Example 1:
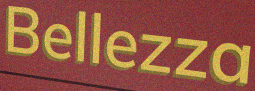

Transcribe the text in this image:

Bellezza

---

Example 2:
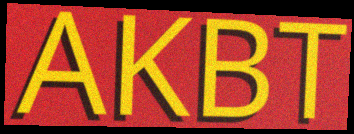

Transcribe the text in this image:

AKBT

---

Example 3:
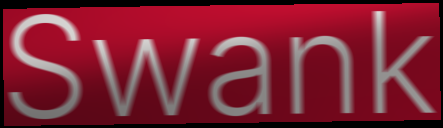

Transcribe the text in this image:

Swank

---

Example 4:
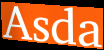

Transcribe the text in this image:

Asda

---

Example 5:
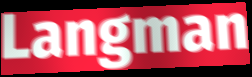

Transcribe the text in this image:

Langman